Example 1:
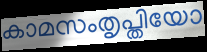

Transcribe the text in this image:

കാമസംതൃപ്തിയോ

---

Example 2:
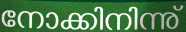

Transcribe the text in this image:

നോക്കിനിന്നു്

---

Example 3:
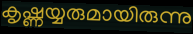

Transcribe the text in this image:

കൃഷ്ണയ്യരുമായിരുന്നു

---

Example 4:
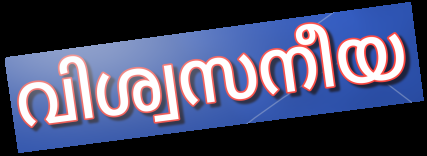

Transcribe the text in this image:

വിശ്വസനീയ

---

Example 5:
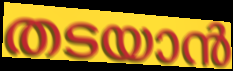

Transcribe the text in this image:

തടയാൻ